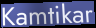
Kamtikar